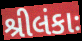
શ્રીલંકાઃ